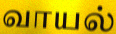
வாயல்